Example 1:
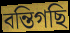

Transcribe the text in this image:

বন্তিগছি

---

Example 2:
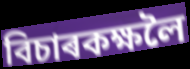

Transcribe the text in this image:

বিচাৰকক্ষলৈ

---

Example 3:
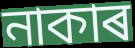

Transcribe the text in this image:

নাকাৰ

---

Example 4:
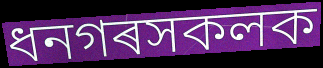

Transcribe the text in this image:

ধনগৰসকলক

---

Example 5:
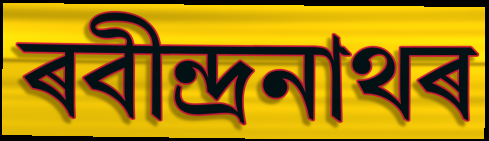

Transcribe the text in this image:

ৰবীন্দ্ৰনাথৰ